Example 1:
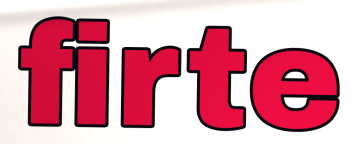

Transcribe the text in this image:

firte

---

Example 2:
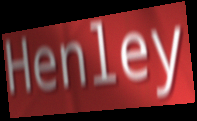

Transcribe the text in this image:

Henley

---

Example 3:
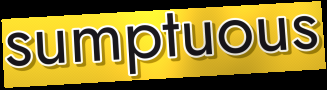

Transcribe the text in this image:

sumptuous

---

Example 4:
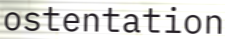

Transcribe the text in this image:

ostentation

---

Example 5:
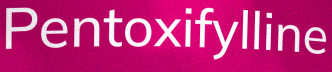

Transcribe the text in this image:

Pentoxifylline